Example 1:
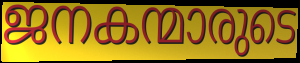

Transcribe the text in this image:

ജനകന്മാരുടെ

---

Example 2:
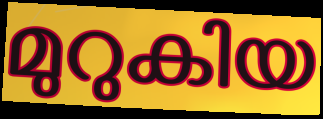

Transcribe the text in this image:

മുറുകിയ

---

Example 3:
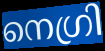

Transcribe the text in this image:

നെഗ്രി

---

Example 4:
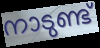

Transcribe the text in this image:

നാടുണ്ട്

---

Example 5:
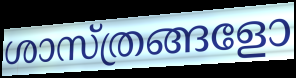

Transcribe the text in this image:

ശാസ്ത്രങ്ങളോ